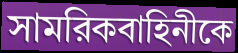
সামরিকবাহিনীকে